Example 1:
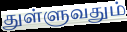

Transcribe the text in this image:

துள்ளுவதும்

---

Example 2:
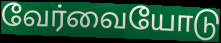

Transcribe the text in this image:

வேர்வையோடு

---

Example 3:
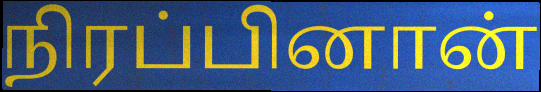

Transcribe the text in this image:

நிரப்பினான்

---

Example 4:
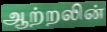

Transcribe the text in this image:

ஆற்றலின்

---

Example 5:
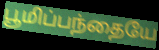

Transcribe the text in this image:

பூமிப்பந்தையே